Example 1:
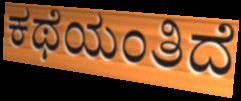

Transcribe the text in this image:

ಕಥೆಯಂತಿದೆ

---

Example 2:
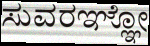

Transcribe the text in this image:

ಸುವರಞ್ಞೋ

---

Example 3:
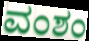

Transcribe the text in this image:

ವಂಶಂ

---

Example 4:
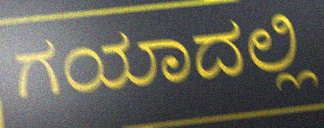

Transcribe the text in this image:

ಗಯಾದಲ್ಲಿ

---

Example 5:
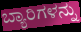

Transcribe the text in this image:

ಬ್ಯಾರಿಗಳನ್ನು